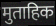
मुताहिक